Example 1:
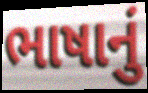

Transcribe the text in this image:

ભાષાનું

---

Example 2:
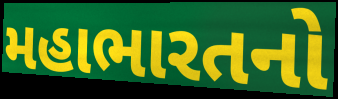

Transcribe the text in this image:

મહાભારતનો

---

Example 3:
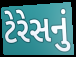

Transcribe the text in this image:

ટેરેસનું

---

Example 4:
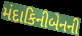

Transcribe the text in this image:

મંદાકિનીબેનની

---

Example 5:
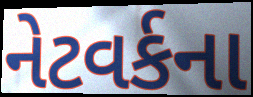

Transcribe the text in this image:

નેટવર્કના